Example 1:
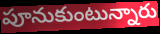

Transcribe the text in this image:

పూనుకుంటున్నారు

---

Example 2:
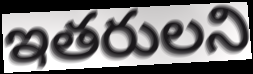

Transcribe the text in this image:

ఇతరులని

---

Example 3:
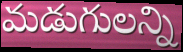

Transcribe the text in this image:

మడుగులన్ని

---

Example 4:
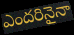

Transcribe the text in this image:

ఎందరినైనా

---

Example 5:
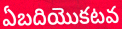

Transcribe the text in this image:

ఏబదియొకటవ